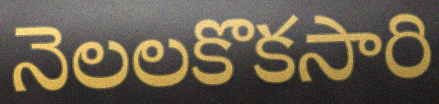
నెలలకొకసారి